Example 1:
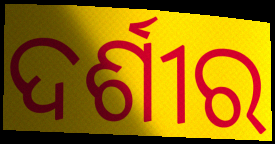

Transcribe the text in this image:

ଦର୍ଶୀର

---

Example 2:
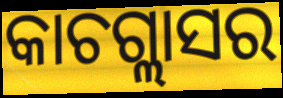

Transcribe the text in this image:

କାଚଗ୍ଲାସର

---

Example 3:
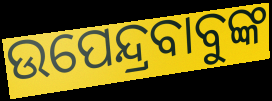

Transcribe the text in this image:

ଉପେନ୍ଦ୍ରବାବୁଙ୍କ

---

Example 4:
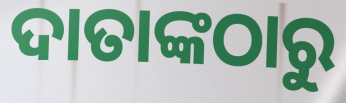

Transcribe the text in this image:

ଦାତାଙ୍କଠାରୁ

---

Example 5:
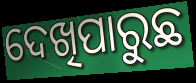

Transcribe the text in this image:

ଦେଖିପାରୁଛ